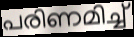
പരിണമിച്ച്